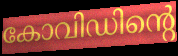
കോവിഡിന്റെ